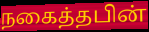
நகைத்தபின்